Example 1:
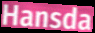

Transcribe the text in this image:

Hansda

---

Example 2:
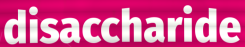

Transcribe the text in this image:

disaccharide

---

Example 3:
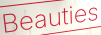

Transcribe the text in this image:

Beauties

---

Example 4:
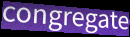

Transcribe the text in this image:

congregate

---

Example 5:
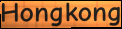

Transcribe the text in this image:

Hongkong